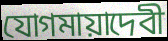
যোগমায়াদেবী